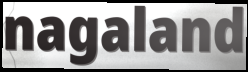
nagaland